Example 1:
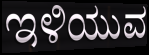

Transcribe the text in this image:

ಇಳಿಯುವ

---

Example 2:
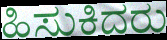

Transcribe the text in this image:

ಹಿಸುಕಿದರು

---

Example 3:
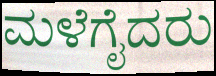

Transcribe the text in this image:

ಮಳೆಗೈದರು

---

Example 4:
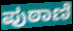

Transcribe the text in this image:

ಪುಠಾಣಿ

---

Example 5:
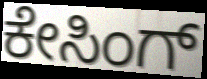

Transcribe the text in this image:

ಕೇಸಿಂಗ್